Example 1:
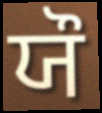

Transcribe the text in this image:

ਯੌ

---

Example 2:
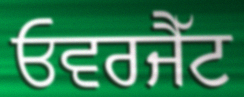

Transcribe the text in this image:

ਓਵਰਜੈੱਟ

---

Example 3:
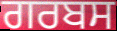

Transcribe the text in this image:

ਗਰਬਸ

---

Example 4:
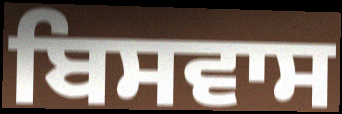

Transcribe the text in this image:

ਬਿਸਵਾਸ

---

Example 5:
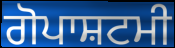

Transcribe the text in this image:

ਗੋਪਾਸ਼ਟਮੀ